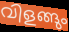
വിളങ്ങും